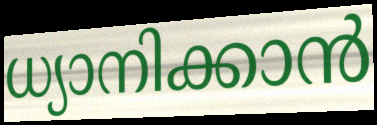
ധ്യാനിക്കാൻ